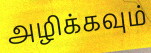
அழிக்கவும்